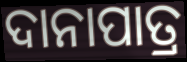
ଦାନାପାତ୍ର